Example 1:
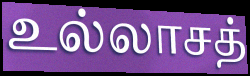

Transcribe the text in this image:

உல்லாசத்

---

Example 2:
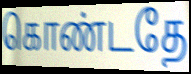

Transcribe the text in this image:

கொண்டதே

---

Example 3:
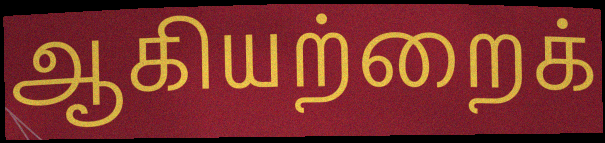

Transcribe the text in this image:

ஆகியற்றைக்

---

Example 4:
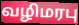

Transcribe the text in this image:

வழிமரபு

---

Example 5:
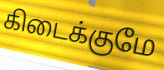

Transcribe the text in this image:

கிடைக்குமே